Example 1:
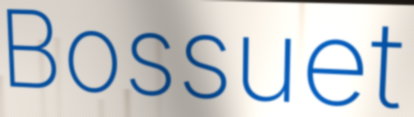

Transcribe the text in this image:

Bossuet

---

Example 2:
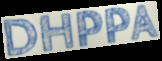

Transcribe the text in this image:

DHPPA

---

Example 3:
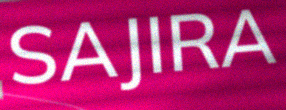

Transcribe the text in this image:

SAJIRA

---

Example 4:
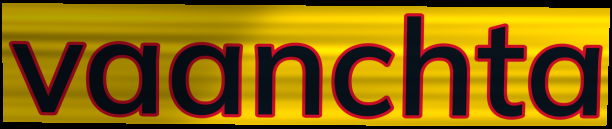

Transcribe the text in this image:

vaanchta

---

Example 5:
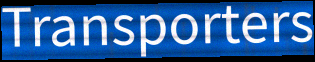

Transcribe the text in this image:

Transporters